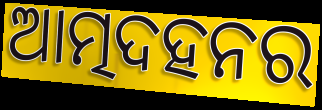
ଆତ୍ମଦହନର